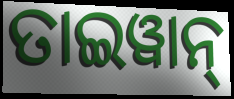
ତାଇୱାନ୍